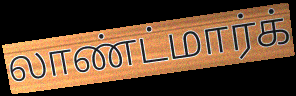
லாண்ட்மார்க்